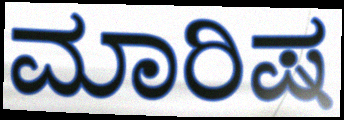
ಮಾರಿಷ